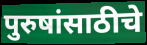
पुरुषांसाठीचे